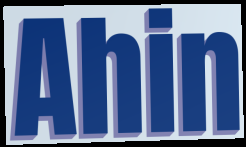
Ahin